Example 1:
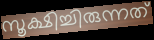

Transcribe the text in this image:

സൂക്ഷിച്ചിരുന്നത്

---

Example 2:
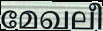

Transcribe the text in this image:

മേഖലീ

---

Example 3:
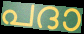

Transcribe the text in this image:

പദാ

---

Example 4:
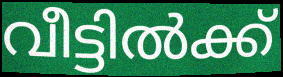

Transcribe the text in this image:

വീട്ടിൽക്ക്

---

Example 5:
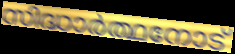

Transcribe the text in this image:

സിദ്ധാർത്ഥനോട്